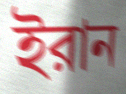
ইরান